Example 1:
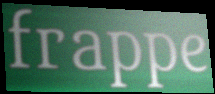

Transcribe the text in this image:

frappe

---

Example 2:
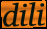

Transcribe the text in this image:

dili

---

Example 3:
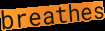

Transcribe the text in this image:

breathes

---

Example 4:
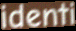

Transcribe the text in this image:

identi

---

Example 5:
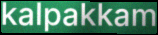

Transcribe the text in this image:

kalpakkam